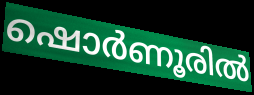
ഷൊർണൂരിൽ